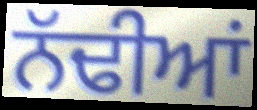
ਨੱਢੀਆਂ